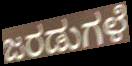
ಜರಡುಗಳೆ